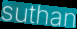
suthan